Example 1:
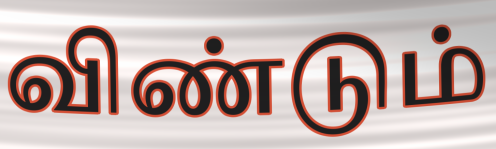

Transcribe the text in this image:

விண்டும்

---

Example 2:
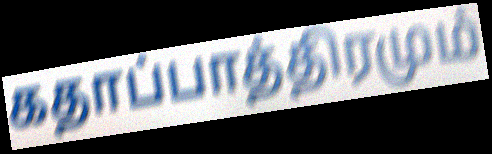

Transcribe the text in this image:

கதாப்பாத்திரமும்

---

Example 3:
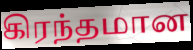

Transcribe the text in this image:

கிரந்தமான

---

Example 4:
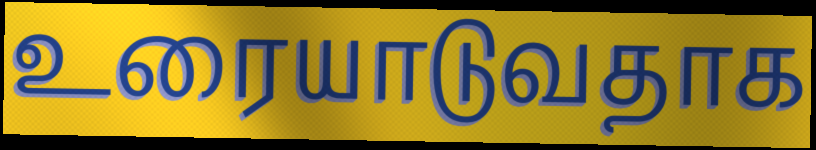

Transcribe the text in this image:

உரையாடுவதாக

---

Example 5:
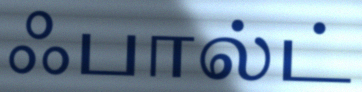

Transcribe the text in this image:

ஃபால்ட்